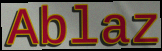
Ablaz